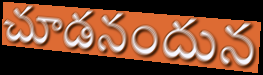
చూడనందున